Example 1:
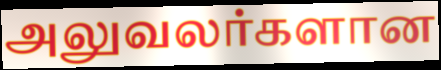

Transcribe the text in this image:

அலுவலர்களான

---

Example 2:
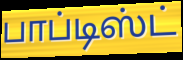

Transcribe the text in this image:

பாப்டிஸ்ட்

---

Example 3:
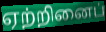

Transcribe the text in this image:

ஏற்றினைப்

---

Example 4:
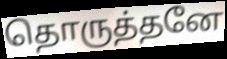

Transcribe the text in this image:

தொருத்தனே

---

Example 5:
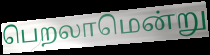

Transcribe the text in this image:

பெறலாமென்று